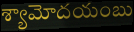
శ్యామోదయంబు